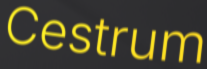
Cestrum